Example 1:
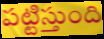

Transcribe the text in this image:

పట్టిస్తుంది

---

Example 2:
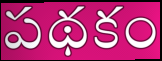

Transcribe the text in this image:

పథకం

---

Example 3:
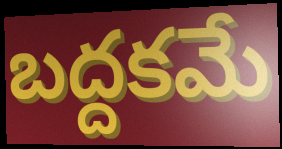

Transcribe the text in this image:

బద్దకమే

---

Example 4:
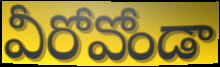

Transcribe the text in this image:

వీరోవోండా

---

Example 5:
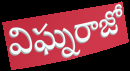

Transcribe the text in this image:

విఘ్నరాజో